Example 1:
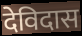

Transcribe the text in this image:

देविदास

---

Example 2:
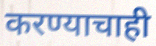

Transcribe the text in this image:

करण्याचाही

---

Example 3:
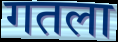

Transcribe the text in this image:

गतला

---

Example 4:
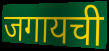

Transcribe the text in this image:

जगायची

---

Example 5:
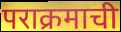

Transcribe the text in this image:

पराक्रमाची